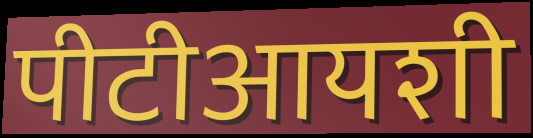
पीटीआयशी